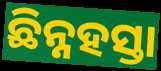
ଛିନ୍ନହସ୍ତା